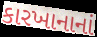
કારખાનાનાં